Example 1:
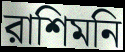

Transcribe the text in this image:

রাশিমনি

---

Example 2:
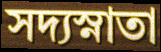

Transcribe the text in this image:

সদ্যস্নাতা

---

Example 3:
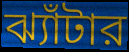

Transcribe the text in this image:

ঝ্যাঁটার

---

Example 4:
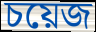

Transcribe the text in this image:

চয়েজ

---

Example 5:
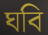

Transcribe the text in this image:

ঘবি